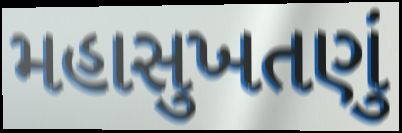
મહાસુખતણું